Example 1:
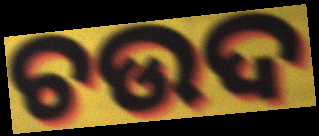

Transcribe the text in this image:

ଚଉଦ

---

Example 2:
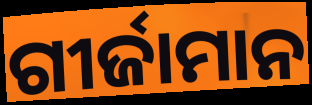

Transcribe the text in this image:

ଗୀର୍ଜାମାନ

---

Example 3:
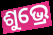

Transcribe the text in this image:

ଶୁଭ୍ରେ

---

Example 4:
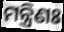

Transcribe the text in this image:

ମନ୍ତ୍ରିଣଃ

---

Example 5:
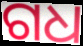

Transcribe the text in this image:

ଗଧ